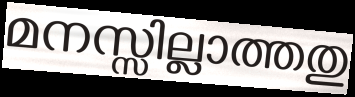
മനസ്സില്ലാത്തതു